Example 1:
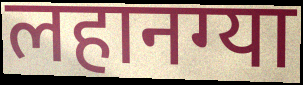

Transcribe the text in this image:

लहानग्या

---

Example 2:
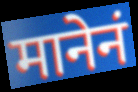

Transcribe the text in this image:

मानेनं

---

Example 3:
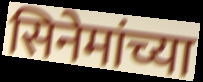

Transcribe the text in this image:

सिनेमांच्या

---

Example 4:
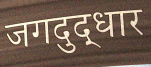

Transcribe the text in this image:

जगदुद्धार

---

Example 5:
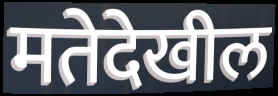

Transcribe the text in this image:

मतेदेखील